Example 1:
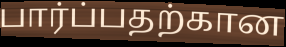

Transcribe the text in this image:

பார்ப்பதற்கான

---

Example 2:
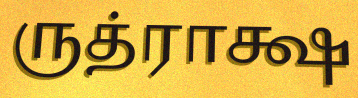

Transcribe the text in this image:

ருத்ராக்ஷ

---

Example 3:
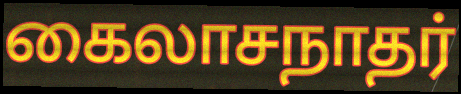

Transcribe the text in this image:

கைலாசநாதர்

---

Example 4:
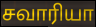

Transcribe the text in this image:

சவாரியா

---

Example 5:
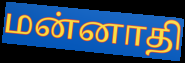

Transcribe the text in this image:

மன்னாதி